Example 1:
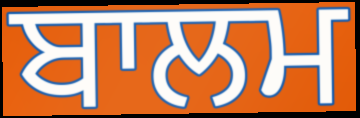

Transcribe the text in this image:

ਬਾਲਮ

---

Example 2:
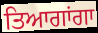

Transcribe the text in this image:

ਤਿਆਗਾਂਗਾ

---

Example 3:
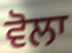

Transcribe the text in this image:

ਵੋਲਾ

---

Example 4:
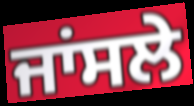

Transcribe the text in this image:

ਜਾਂਸਲੇ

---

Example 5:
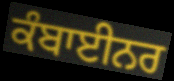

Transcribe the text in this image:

ਕੰਬਾਈਨਰ